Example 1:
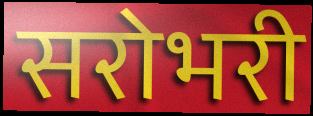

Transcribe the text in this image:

सरोभरी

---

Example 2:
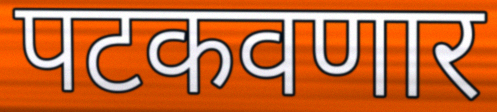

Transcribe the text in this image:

पटकवणार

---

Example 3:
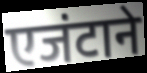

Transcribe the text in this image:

एजंटाने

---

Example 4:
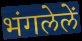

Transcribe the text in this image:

भंगलेलें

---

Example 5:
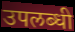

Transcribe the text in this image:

उपलब्धी